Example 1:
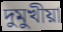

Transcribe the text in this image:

দুমুখীয়া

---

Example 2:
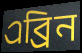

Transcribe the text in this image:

এব্ৰিন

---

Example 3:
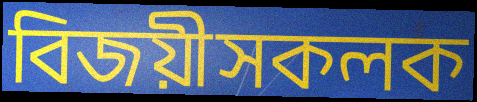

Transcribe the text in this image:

বিজয়ীসকলক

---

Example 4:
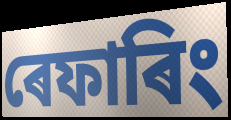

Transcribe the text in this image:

ৰেফাৰিং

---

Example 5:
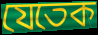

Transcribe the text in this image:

যেতেক